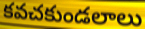
కవచకుండలాలు